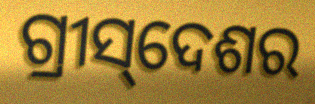
ଗ୍ରୀସ୍‌ଦେଶର